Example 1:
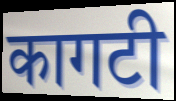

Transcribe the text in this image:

कागटी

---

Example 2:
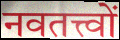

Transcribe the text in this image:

नवतत्त्वों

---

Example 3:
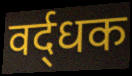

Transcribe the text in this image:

वर्द्धक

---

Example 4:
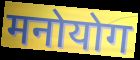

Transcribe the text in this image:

मनोयोग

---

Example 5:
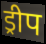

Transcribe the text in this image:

ड्रीप